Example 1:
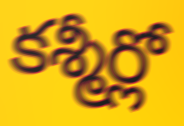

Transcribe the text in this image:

కశ్మీర్లో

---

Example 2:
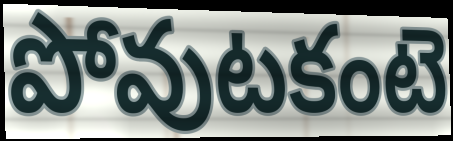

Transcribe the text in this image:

పోవుటకంటె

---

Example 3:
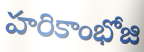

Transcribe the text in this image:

హరికాంభోజి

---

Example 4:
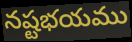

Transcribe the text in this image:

నష్టభయము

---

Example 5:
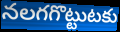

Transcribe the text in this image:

నలగగొట్టుటకు